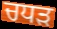
ਚਧੜ